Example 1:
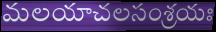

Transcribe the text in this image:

మలయాచలసంశ్రయః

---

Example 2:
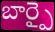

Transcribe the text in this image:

బార్పై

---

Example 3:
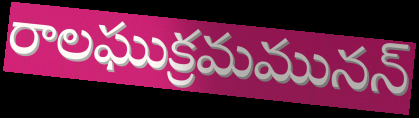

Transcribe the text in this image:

రాలఘుక్రమమునన్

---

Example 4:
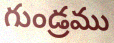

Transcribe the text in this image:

గుండ్రము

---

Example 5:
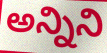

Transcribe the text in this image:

అన్నిని